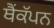
ਥੈਂਕੱਪਨ